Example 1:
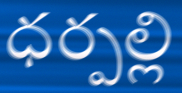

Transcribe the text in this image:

ధర్పల్లి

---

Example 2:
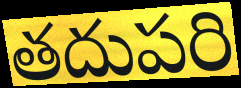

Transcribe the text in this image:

తదుపరి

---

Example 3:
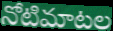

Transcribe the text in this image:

నోటిమాటల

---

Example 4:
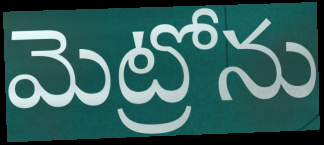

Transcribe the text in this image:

మెట్రోను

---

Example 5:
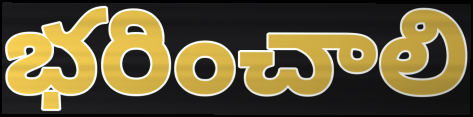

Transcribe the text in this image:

భరించాలి